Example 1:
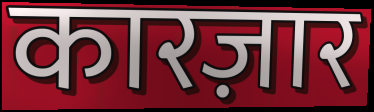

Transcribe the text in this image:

कारज़ार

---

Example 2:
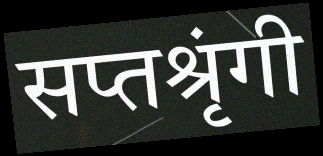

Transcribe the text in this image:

सप्तश्रृंगी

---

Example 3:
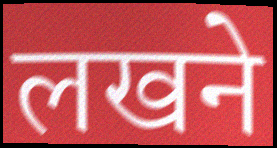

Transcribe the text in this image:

लखने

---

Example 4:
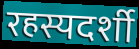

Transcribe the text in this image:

रहस्यदर्शी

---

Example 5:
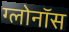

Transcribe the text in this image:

ग्लोनॉस